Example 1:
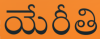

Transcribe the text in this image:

యేరీతి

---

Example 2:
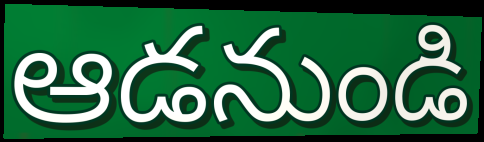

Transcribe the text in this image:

ఆడనుండి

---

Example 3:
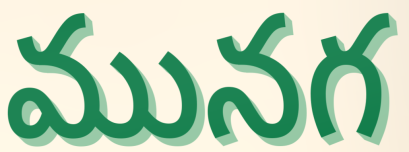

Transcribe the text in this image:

మునగ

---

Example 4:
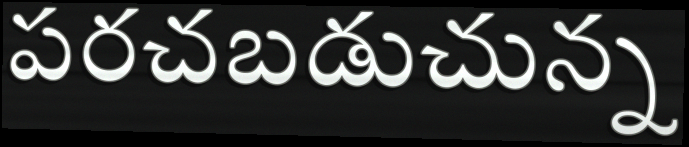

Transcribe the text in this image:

పరచబడుచున్న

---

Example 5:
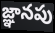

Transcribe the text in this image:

జ్ఞానపు